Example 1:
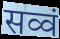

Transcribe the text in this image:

सव्वं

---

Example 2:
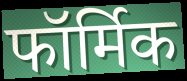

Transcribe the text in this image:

फॉर्मिक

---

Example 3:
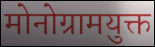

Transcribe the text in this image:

मोनोग्रामयुक्त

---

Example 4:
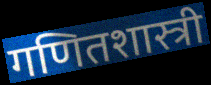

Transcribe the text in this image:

गणितशास्त्री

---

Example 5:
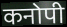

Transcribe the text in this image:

कनोपी